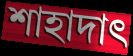
শাহাদাৎ